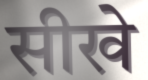
सीखे